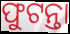
ଫୁଟନ୍ତା